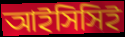
আইসিসিই